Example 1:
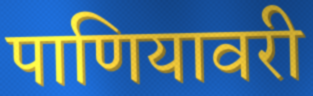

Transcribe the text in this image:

पाणियावरी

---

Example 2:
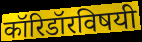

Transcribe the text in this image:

कॉरिडॉरविषयी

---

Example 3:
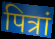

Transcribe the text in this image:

पित्रां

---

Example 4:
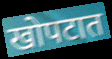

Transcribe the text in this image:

खोपटात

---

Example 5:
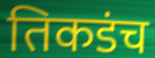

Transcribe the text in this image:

तिकडंच